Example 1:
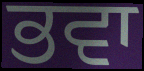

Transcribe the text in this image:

ਭਵਾ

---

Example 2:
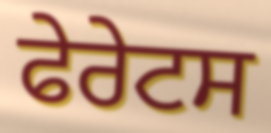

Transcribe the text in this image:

ਫੇਰੇਟਸ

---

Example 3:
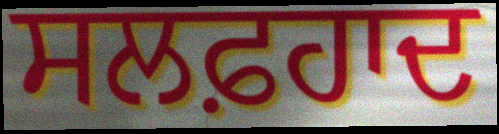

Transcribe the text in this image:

ਸਲਫ਼ਹਾਦ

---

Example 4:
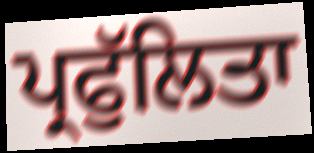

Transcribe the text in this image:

ਪ੍ਰਫੁੱਲਿਤਾ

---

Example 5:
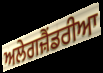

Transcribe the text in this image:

ਅਲੇਗਜ਼ੈਂਡਰੀਆ